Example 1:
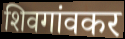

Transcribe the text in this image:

शिवगांवकर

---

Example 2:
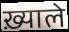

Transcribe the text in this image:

ख़्याले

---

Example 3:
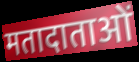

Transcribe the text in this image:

मतादाताओं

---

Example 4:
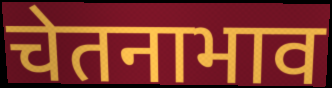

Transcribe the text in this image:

चेतनाभाव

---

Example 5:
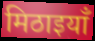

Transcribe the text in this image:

मिठाइयाँ